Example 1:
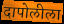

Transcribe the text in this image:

दापोलीला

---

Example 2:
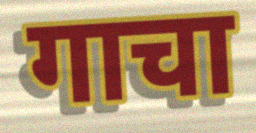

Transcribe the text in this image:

गाचा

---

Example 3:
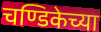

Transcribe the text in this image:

चण्डिकेच्या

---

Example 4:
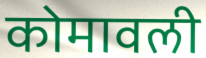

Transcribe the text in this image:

कोमावली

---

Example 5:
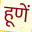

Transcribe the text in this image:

हूणें